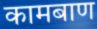
कामबाण